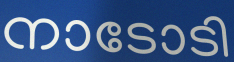
നാടോടി